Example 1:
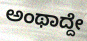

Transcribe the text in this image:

ಅಂಥಾದ್ದೇ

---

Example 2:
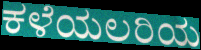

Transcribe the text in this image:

ಕಳೆಯಲರಿಯ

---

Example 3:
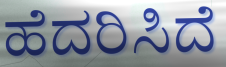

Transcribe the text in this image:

ಹೆದರಿಸಿದೆ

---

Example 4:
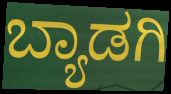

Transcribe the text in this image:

ಬ್ಯಾಡಗಿ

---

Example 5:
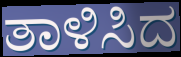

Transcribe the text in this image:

ತಾಳಿಸಿದ